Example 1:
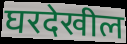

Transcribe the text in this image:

घरदेखील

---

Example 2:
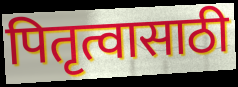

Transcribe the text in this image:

पितृत्वासाठी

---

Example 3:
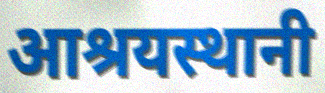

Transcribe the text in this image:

आश्रयस्थानी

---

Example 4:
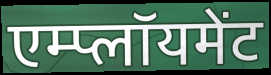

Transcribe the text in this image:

एम्प्लॉयमेंट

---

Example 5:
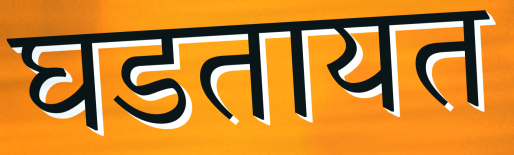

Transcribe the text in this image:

घडतायत